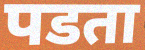
पडता